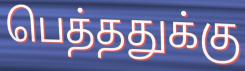
பெத்ததுக்கு